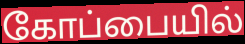
கோப்பையில்